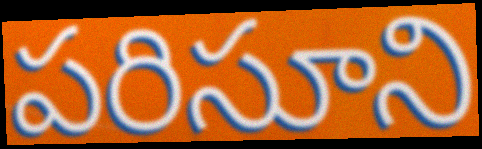
పరిసూని